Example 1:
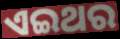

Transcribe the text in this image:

ଏଇଥର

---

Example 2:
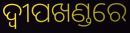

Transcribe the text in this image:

ଦ୍ଵୀପଖଣ୍ଡରେ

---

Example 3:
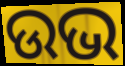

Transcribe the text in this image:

ଉଭ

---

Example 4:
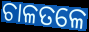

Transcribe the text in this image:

ଚାଳତଳେ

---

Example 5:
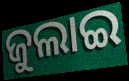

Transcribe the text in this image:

ଜୁଲାଇ